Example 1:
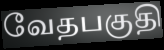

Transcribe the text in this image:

வேதபகுதி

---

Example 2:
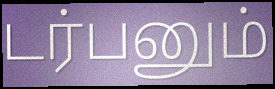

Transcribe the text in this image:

டர்பனும்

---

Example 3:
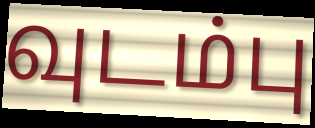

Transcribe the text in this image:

வுடம்பு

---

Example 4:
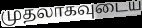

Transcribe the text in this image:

முதலாகவுடைய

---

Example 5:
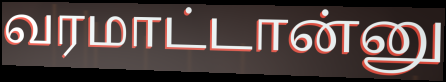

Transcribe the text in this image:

வரமாட்டான்னு